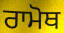
ਰਾਮੋਥ